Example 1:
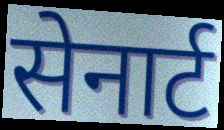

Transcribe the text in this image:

सेनार्ट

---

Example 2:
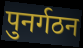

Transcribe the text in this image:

पुनर्गठन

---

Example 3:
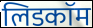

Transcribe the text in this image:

लिडकॉम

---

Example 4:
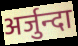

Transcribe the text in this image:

अर्जुन्दा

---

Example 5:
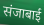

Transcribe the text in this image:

संजाबाई